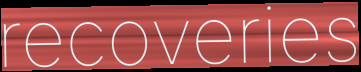
recoveries